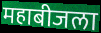
महाबीजला